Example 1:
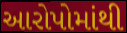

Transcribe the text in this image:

આરોપોમાંથી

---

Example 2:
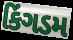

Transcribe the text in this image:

કિંગડમ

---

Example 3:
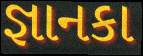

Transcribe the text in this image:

જ્ઞાનકા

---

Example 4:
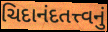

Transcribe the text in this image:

ચિદાનંદતત્ત્વનું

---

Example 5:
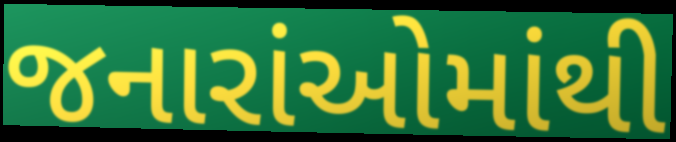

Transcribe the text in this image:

જનારાંઓમાંથી